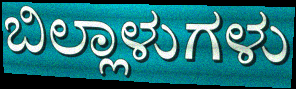
ಬಿಲ್ಲಾಳುಗಳು